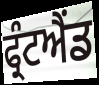
ਫ੍ਰੰਟਐਂਡ